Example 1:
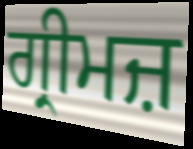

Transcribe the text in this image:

ਗ੍ਰੀਮਜ਼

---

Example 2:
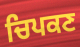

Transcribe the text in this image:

ਚਿਪਕਣ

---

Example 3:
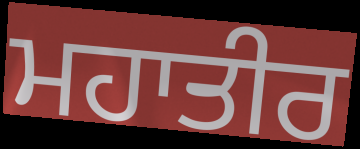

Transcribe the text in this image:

ਮਹਾਤੀਰ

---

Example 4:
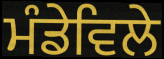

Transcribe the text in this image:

ਮੰਡੇਵਿਲੇ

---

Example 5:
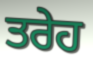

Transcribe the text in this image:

ਤਰੇਹ